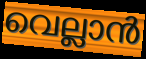
വെല്ലാൻ